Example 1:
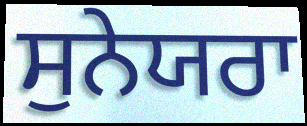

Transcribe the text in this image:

ਸੁਨੇਯਰਾ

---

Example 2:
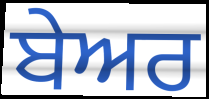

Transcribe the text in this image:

ਬੇਅਰ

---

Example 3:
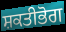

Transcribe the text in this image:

ਸ਼ਕਤੀਭੋਗ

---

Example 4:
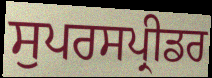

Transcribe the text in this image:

ਸੁਪਰਸਪ੍ਰੀਡਰ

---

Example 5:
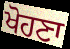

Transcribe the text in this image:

ਖੋਹਣਾ